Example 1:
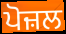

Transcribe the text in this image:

ਪੋਜ਼ਲ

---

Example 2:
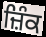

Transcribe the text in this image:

ਜ਼ਿੰਕ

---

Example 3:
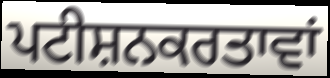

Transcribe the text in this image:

ਪਟੀਸ਼ਨਕਰਤਾਵਾਂ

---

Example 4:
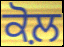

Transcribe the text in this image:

ਕੋਲ਼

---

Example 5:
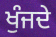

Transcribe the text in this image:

ਖੁੰਜਦੇ